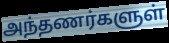
அந்தணர்களுள்